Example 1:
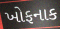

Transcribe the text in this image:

ખોફનાક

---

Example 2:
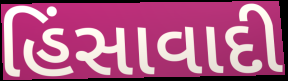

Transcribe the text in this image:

હિંસાવાદી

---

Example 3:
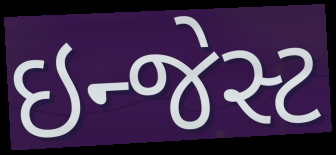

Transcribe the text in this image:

ઇન્જેસ્ટ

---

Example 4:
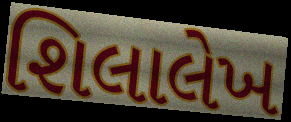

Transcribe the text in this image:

શિલાલેખ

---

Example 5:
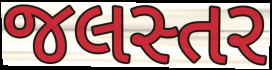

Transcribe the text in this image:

જલસ્તર